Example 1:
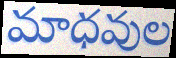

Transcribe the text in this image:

మాధవుల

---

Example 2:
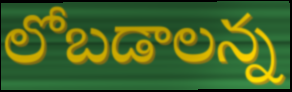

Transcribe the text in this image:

లోబడాలన్న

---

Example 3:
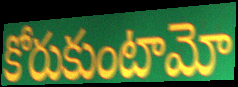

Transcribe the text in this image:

కోరుకుంటామో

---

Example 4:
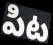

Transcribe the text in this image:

పిట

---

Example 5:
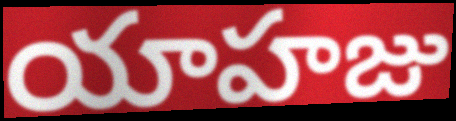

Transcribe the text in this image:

యాహజు